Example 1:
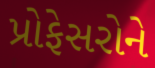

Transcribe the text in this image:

પ્રોફેસરોને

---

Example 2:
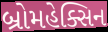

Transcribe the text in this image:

બ્રોમહેક્સિન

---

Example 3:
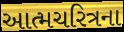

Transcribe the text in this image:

આત્મચરિત્રના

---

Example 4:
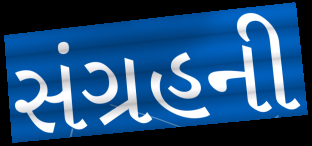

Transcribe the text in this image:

સંગ્રહની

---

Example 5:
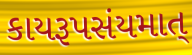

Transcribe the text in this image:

કાયરૂપસંયમાત્